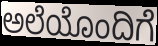
ಅಲೆಯೊಂದಿಗೆ